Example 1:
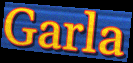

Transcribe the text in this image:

Garla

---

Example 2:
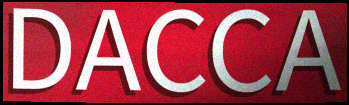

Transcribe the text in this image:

DACCA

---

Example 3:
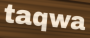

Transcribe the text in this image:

taqwa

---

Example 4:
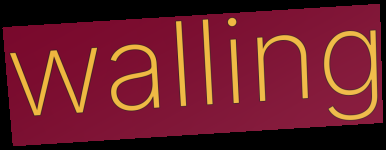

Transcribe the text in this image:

walling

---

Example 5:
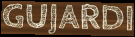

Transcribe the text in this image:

GUJARDI